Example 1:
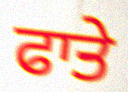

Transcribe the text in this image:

ਫਾਤੇ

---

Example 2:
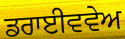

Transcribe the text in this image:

ਡਰਾਈਵਵੇਅ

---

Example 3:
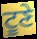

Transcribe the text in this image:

ਟੂਣੇ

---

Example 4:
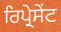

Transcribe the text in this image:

ਰਿਪ੍ਰੇਸੇੰਟ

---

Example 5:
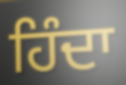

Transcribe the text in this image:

ਹਿੰਦਾ